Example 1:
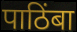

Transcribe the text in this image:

पाठिंबा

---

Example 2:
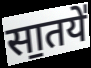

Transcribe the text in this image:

सा॒तये॑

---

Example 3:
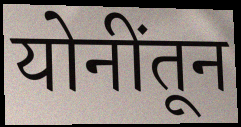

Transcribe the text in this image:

योनींतून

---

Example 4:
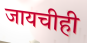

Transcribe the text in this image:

जायचीही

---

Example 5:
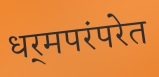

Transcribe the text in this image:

धर्मपरंपरेत